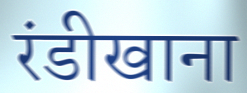
रंडीखाना